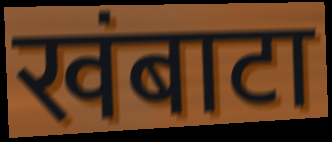
खंबाटा